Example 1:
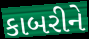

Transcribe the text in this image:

કાબરીને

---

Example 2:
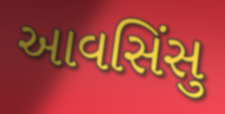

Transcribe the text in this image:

આવસિંસુ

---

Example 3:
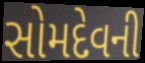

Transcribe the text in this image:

સોમદેવની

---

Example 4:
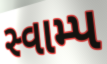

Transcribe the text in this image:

સ્વામ્પ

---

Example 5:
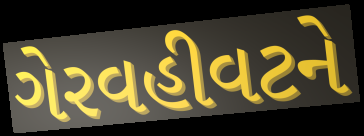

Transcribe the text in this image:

ગેરવહીવટને